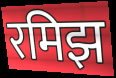
रमिझ